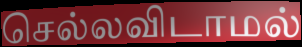
செல்லவிடாமல்